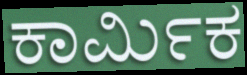
ಕಾರ್ಮಿಕ